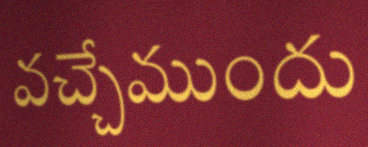
వచ్చేముందు